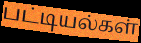
பட்டியல்கள்